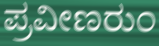
ಪ್ರವೀಣರುಂ